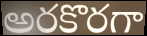
అరకొరగా